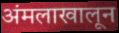
अंमलाखालून